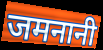
जमनानी